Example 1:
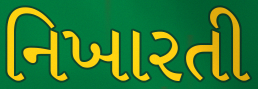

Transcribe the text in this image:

નિખારતી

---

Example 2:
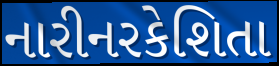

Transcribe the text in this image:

નારીનરકેશિતા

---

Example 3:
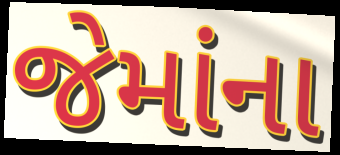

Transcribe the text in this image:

જેમાંના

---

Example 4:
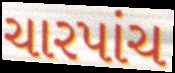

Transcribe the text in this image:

ચારપાંચ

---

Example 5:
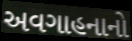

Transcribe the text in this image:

અવગાહનાનો